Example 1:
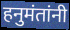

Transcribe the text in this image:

हनुमंतांनी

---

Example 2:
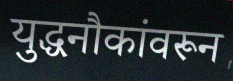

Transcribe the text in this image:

युद्धनौकांवरून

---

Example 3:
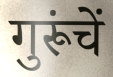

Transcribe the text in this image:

गुरूंचें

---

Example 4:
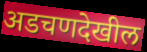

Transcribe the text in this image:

अडचणदेखील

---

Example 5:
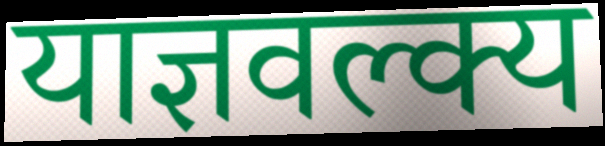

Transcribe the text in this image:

याज्ञवल्क्य